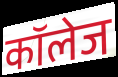
कॉलेज